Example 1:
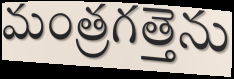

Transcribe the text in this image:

మంత్రగత్తెను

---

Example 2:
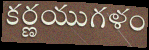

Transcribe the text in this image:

కర్ణయుగళం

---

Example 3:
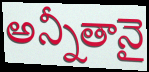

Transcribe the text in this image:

అన్నీతానై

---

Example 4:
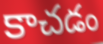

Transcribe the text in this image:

కాచడం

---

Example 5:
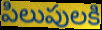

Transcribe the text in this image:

పిలుపులకి